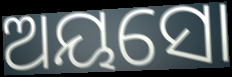
ଅୟସୋ